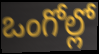
ఒంగోల్లో